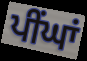
ਪੀਂਘਾਂ